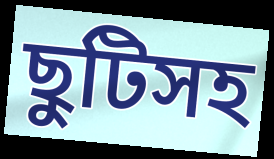
ছুটিসহ